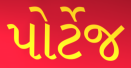
પોર્ટેજ